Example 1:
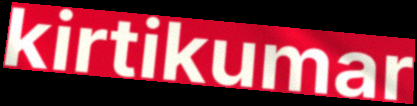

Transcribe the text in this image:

kirtikumar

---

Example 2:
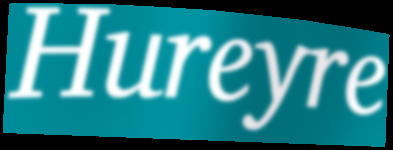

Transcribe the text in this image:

Hureyre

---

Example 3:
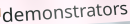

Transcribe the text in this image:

demonstrators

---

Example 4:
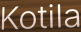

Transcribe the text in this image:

Kotila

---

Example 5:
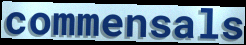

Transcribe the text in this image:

commensals